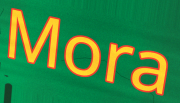
Mora